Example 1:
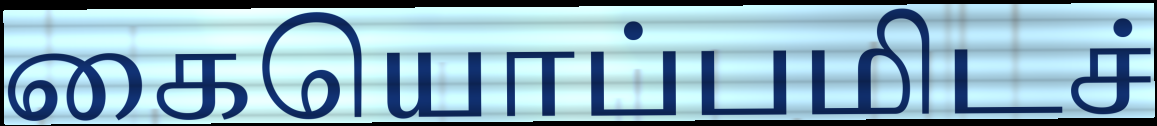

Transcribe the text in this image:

கையொப்பமிடச்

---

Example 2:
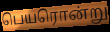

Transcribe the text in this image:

பெயரொன்று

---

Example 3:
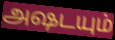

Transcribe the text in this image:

அஷடயும்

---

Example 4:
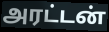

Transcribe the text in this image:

அரட்டன்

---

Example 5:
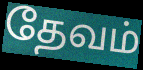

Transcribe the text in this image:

தேவம்